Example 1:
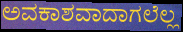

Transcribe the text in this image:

ಅವಕಾಶವಾದಾಗಲೆಲ್ಲ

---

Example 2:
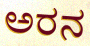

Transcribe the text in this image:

ಅರನ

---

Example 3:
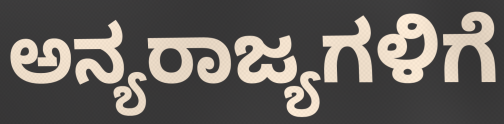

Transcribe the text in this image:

ಅನ್ಯರಾಜ್ಯಗಳಿಗೆ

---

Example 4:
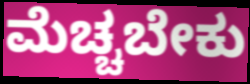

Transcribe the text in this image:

ಮೆಚ್ಚಬೇಕು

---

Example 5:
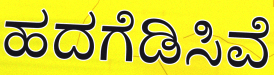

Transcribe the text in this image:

ಹದಗೆಡಿಸಿವೆ